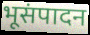
भूसंपादन